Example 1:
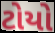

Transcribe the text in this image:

ટોયો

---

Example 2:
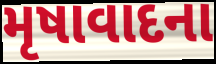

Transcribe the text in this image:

મૃષાવાદના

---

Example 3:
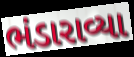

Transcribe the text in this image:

ભંડારાવ્યા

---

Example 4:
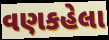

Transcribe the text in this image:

વણકહેલા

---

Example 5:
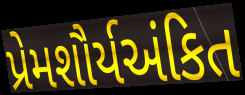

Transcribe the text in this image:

પ્રેમશૌર્યઅંકિત